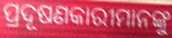
ପ୍ରଦୂଷଣକାରୀମାନଙ୍କୁ